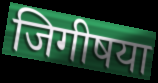
जिगीषया